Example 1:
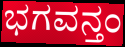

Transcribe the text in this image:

ಭಗವನ್ತಂ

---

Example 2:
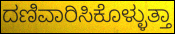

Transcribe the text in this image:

ದಣಿವಾರಿಸಿಕೊಳ್ಳುತ್ತಾ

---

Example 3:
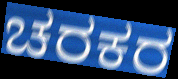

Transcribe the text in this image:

ಚರಕರ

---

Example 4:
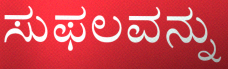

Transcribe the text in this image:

ಸುಫಲವನ್ನು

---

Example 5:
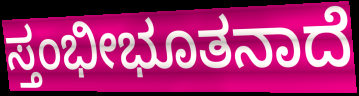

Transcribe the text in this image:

ಸ್ತಂಭೀಭೂತನಾದೆ